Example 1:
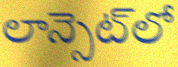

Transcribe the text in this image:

లాన్సెట్‌లో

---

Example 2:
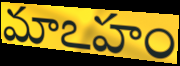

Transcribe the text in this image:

మాఽహం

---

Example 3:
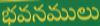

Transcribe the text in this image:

భవనములు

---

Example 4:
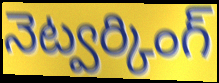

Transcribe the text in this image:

నెట్వర్కింగ్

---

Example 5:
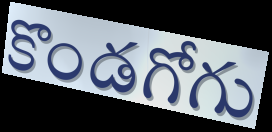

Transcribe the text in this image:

కొండగోగు